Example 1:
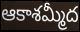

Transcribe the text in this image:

ఆకాశమ్మీద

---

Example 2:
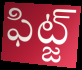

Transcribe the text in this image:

ఫిట్జ్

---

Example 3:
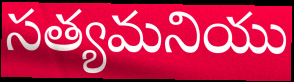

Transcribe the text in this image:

సత్యమనియు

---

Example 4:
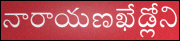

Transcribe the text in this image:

నారాయణఖేడ్లోని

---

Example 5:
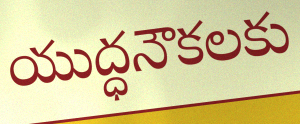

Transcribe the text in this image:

యుద్ధనౌకలకు